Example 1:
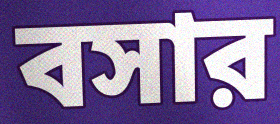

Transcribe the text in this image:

বসার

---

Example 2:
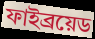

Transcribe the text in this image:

ফাইব্রয়েড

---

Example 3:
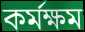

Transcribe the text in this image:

কর্মক্ষম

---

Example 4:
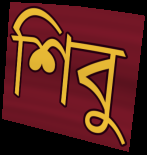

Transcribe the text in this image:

শিবু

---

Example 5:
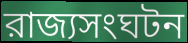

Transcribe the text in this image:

রাজ্যসংঘটন